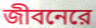
জীবনেরে